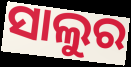
ସାଲୁର